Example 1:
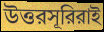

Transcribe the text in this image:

উত্তরসূরিরাই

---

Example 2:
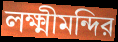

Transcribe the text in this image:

লক্ষ্মীমন্দির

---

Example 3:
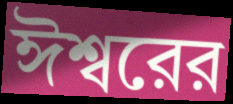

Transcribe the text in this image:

ঈশ্বরের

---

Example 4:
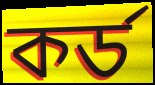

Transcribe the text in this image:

কর্ড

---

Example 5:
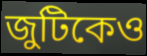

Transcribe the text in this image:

জুটিকেও